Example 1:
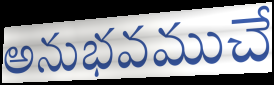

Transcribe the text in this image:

అనుభవముచే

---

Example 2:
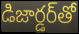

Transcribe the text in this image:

డిజార్డర్‌తో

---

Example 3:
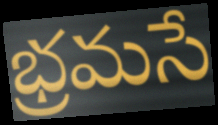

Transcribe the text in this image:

భ్రమసే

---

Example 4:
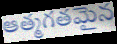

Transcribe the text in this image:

ఆత్మగతమైన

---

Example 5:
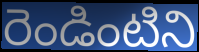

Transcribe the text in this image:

రెండింటిని